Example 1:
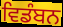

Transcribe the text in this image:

ਵਿਡੰਬਨ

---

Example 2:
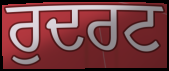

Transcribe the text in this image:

ਰੁਦਰਟ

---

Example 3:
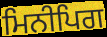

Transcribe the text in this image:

ਮਿਨੀਪਿਗ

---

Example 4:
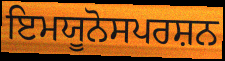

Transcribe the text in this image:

ਇਮਯੂਨੋਸਪਰਸ਼ਨ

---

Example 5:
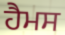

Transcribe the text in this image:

ਹੈਮਸ